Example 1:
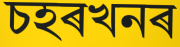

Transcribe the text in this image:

চহৰখনৰ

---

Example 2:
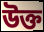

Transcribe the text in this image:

উক্ত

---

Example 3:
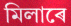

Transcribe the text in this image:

মিলাৰে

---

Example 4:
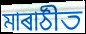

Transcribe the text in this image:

মাৰাঠীত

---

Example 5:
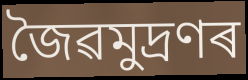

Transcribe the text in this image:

জৈৱমুদ্ৰণৰ